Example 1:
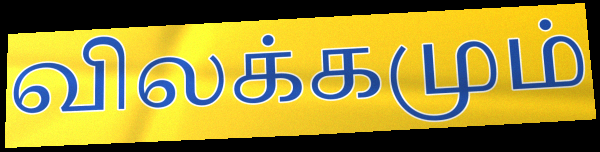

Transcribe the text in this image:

விலக்கமும்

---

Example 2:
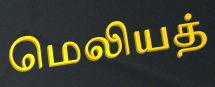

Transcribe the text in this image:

மெலியத்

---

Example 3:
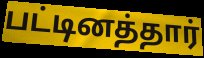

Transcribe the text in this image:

பட்டினத்தார்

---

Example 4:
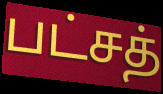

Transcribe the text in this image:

பட்சத்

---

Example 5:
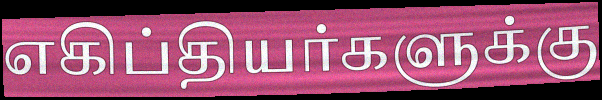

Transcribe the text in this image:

எகிப்தியர்களுக்கு